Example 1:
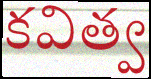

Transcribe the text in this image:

కవిత్వ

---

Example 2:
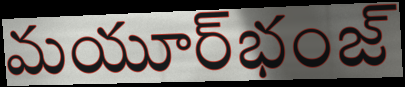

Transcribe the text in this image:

మయూర్‌భంజ్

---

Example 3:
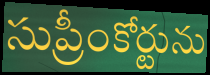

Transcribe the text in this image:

సుప్రీంకోర్టును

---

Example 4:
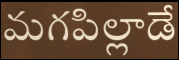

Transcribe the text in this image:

మగపిల్లాడే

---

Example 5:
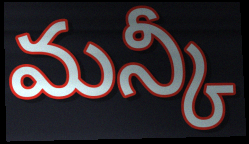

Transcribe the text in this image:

మన్కీ